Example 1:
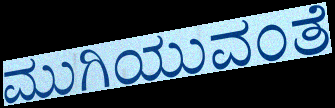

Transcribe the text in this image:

ಮುಗಿಯುವಂತೆ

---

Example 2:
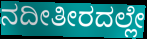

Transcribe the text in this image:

ನದೀತೀರದಲ್ಲೇ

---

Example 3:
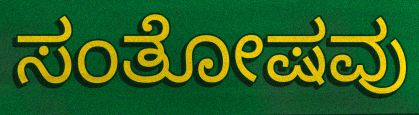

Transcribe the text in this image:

ಸಂತೋಷವು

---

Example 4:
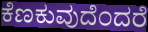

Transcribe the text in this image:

ಕೆಣಕುವುದೆಂದರೆ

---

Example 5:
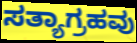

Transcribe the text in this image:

ಸತ್ಯಾಗ್ರಹವು